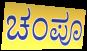
ಚಂಪೂ